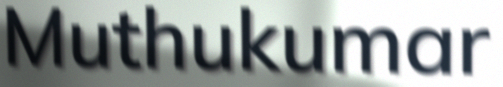
Muthukumar